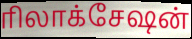
ரிலாக்சேஷன்